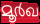
മൂർഖ